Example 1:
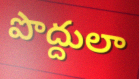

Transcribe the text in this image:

పొద్దులా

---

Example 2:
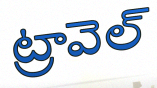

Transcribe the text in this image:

ట్రావెల్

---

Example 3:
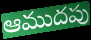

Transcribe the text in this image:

ఆముదపు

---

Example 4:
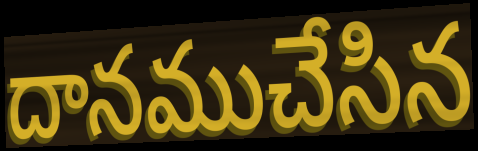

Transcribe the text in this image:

దానముచేసిన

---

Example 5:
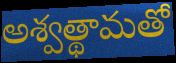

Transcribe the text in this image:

అశ్వత్థామతో